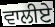
ਵਾਲੀਏ